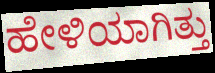
ಹೇಳಿಯಾಗಿತ್ತು